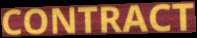
CONTRACT